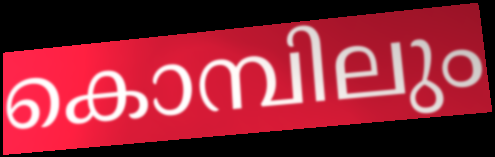
കൊമ്പിലും